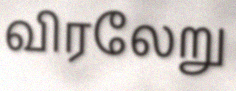
விரலேறு